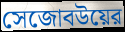
সেজোবউয়ের